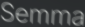
Semma